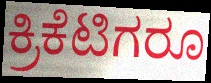
ಕ್ರಿಕೆಟಿಗರೂ